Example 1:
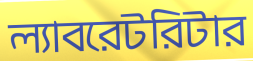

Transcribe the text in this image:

ল্যাবরেটরিটার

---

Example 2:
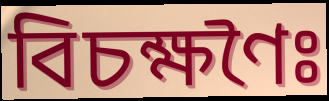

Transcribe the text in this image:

বিচক্ষণৈঃ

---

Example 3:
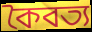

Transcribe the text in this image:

কৈবত্য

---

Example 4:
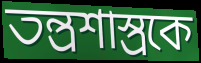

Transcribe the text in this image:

তন্ত্রশাস্ত্রকে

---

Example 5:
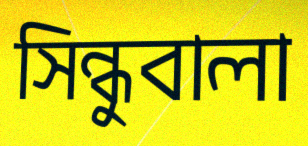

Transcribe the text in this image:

সিন্ধুবালা